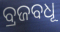
ବ୍ରଜବଧୂ